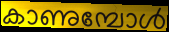
കാണുമ്പോൾ